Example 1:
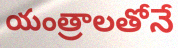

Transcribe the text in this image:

యంత్రాలతోనే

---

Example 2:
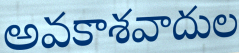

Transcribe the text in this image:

అవకాశవాదుల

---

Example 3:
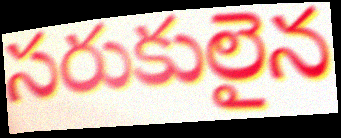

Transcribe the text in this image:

సరుకులైన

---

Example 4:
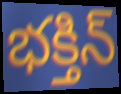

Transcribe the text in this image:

భక్తిన్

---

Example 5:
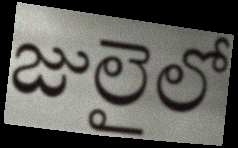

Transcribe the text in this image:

జులైలో